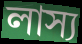
লাস্য